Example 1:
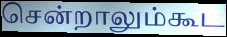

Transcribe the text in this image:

சென்றாலும்கூட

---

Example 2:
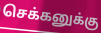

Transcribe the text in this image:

செக்கனுக்கு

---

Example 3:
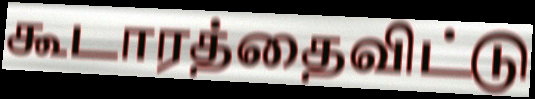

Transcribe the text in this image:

கூடாரத்தைவிட்டு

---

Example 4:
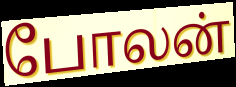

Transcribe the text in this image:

போலன்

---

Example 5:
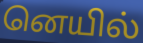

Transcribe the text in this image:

னெயில்